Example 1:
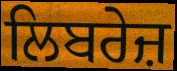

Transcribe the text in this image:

ਲਿਬਰੇਜ਼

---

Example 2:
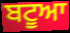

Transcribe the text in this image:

ਬਟੂਆ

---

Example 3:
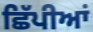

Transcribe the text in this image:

ਛਿੱਪੀਆਂ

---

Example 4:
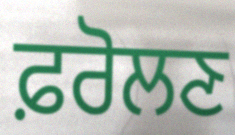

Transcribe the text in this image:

ਫ਼ਰੋਲਣ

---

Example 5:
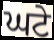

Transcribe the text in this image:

ਘਟੇ